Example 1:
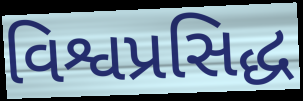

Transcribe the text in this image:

વિશ્વપ્રસિદ્ધ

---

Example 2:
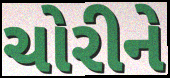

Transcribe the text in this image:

ચોરીને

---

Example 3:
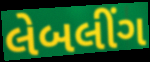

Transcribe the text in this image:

લેબલીંગ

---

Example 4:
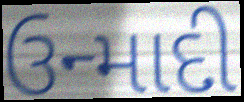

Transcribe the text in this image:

ઉન્માદી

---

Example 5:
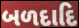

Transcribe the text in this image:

બળદાદિ